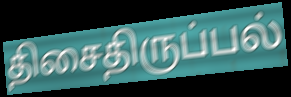
திசைதிருப்பல்